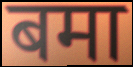
बमा